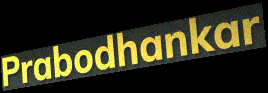
Prabodhankar